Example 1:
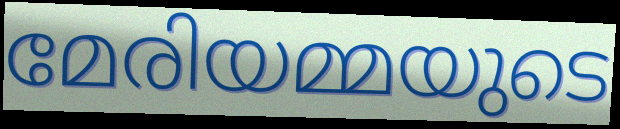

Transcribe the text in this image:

മേരിയമ്മയുടെ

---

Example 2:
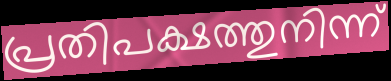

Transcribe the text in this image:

പ്രതിപക്ഷത്തുനിന്ന്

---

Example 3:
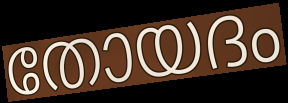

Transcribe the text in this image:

തോയദം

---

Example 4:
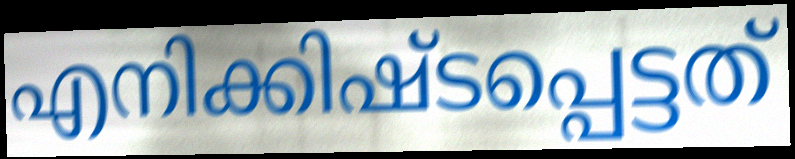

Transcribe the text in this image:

എനിക്കിഷ്ടപ്പെട്ടത്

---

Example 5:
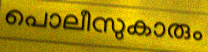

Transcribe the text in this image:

പൊലീസുകാരും